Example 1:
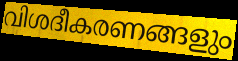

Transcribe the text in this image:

വിശദീകരണങ്ങളും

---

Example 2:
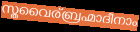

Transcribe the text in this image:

സ്തവൈര്ബ്രഹ്മാദീനാം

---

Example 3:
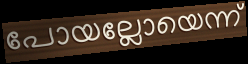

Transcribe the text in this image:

പോയല്ലോയെന്ന്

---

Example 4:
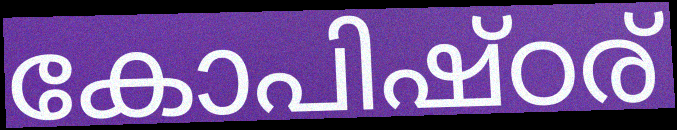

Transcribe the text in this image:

കോപിഷ്ഠര്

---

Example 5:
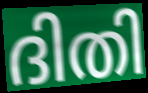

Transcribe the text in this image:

ദിതി